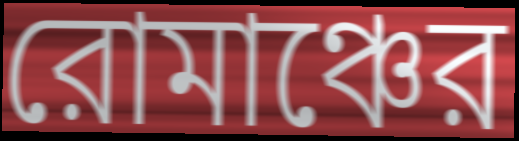
রোমাঞ্চের